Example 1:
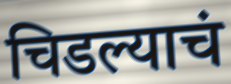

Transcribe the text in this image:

चिडल्याचं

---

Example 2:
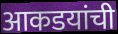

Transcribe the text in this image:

आकडयांची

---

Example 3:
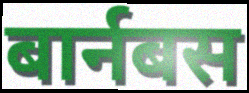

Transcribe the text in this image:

बार्नबस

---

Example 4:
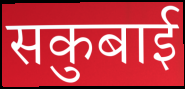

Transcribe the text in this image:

सकुबाई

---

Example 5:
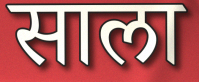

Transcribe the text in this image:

साला